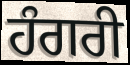
ਹੰਗਰੀ